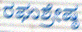
ರಘುಶ್ರೇಷ್ಠ